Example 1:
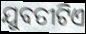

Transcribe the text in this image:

ଯୁବତୀଟିଏ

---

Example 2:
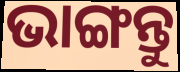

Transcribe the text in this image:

ଭାଙ୍ଗନ୍ତୁ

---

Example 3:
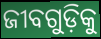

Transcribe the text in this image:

ଜୀବଗୁଡ଼ିକୁ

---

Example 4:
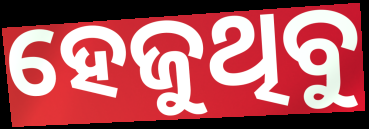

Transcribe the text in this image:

ହେଜୁଥିବୁ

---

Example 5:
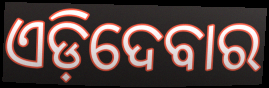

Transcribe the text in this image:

ଏଡ଼ିଦେବାର